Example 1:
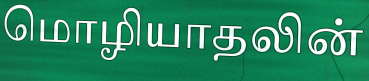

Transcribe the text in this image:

மொழியாதலின்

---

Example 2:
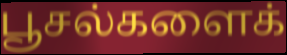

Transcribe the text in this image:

பூசல்களைக்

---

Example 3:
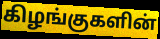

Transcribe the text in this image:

கிழங்குகளின்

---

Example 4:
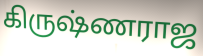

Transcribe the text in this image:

கிருஷ்ணராஜ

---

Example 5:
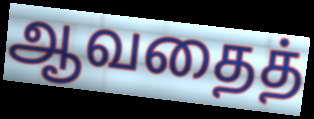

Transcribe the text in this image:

ஆவதைத்